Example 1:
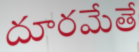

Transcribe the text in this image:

దూరమేతే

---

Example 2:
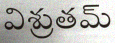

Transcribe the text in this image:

విశ్రుతమ్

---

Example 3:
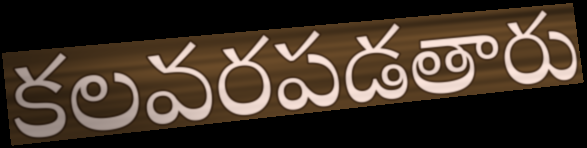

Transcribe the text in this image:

కలవరపడతారు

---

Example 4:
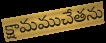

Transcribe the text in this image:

క్షామముచేతను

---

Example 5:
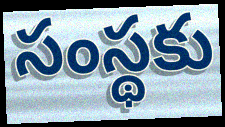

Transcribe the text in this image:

సంస్థకు